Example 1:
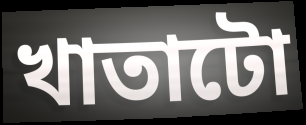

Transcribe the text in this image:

খাতাটো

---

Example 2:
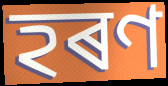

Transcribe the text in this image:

হৰণ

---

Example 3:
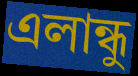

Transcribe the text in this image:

এলান্ধু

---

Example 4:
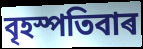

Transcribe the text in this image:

বৃহস্পতিবাৰ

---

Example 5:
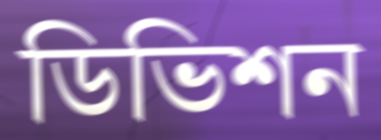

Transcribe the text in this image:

ডিভিশন